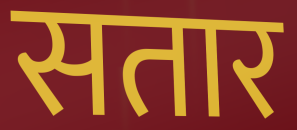
सतार